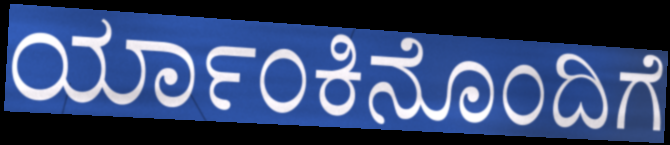
ರ್ಯಾಂಕಿನೊಂದಿಗೆ